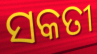
ସକତୀ